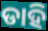
ଡାହି